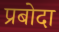
प्रबोदा